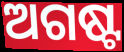
ଅଗଷ୍ଟ